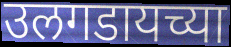
उलगडायच्या